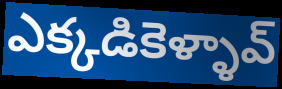
ఎక్కడికెళ్ళావ్